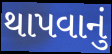
થાપવાનું